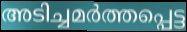
അടിച്ചമർത്തപ്പെട്ട